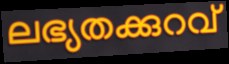
ലഭ്യതക്കുറവ്